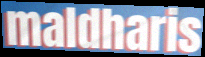
maldharis